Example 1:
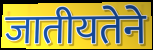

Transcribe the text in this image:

जातीयतेने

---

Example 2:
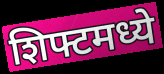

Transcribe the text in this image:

शिफ्टमध्ये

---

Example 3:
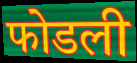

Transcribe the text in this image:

फोडली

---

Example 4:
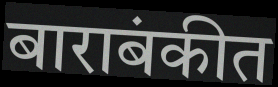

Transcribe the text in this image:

बाराबंकीत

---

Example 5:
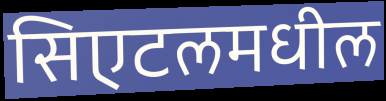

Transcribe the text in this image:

सिएटलमधील